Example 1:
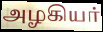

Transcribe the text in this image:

அழகியர்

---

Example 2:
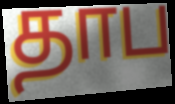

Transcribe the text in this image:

தாப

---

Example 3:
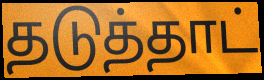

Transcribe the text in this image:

தடுத்தாட்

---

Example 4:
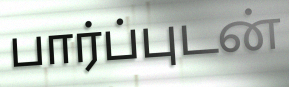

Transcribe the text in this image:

பார்ப்புடன்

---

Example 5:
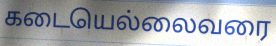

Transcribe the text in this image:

கடையெல்லைவரை